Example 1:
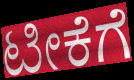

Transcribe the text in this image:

ಟೀಕೆಗೆ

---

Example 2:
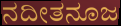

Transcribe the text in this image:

ನದೀತನೂಜ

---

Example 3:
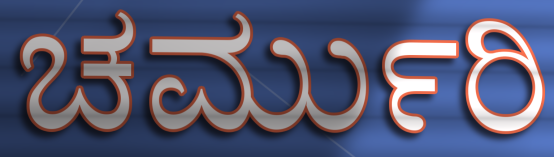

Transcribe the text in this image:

ಚರ್ಮುರಿ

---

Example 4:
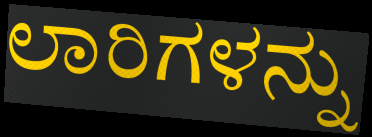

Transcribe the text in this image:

ಲಾರಿಗಳನ್ನು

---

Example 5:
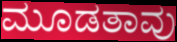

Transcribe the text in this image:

ಮೂಡತಾವು